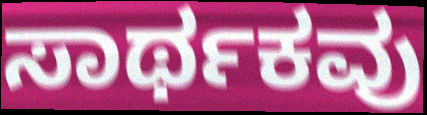
ಸಾರ್ಥಕವು